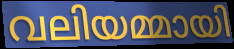
വലിയമ്മായി